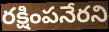
రక్షింపనేరని